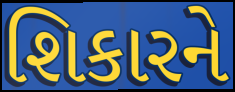
શિકારને